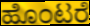
ಹೊಂಟರೆ